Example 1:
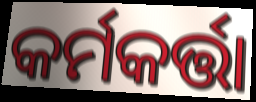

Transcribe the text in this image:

କର୍ମକର୍ତ୍ତା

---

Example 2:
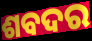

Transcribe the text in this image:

ଶବଦର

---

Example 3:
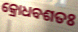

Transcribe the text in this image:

କ୍ରୋଧବଶତଃ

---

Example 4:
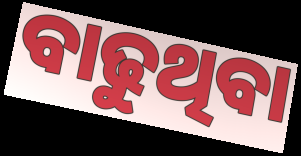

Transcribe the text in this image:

ବାଢୁଥିବା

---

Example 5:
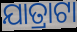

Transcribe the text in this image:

ଯାତ୍ରାଟା